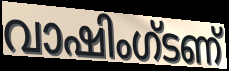
വാഷിംഗ്ടണ്